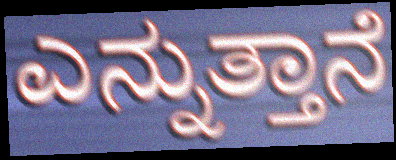
ಎನ್ನುತ್ತಾನೆ